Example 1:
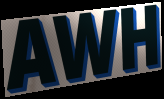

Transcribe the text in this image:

AWH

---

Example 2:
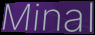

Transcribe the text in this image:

Minal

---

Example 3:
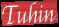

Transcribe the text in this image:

Tuhin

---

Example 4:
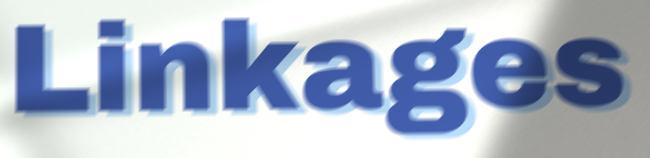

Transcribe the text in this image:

Linkages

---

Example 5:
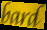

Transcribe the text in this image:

bard